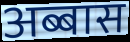
अब्बास